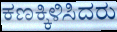
ಕಣಕ್ಕಿಳಿಸಿದರು